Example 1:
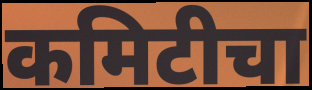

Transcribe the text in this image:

कमिटीचा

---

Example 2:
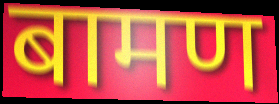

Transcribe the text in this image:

बामण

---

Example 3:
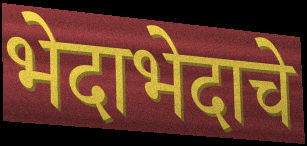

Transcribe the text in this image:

भेदाभेदाचे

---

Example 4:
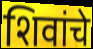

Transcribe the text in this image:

शिवांचे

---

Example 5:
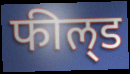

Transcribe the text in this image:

फील्ड